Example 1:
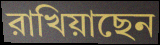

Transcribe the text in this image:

রাখিয়াছেন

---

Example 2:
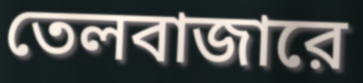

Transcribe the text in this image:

তেলবাজারে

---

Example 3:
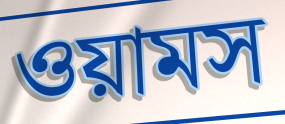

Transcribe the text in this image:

ওয়ামস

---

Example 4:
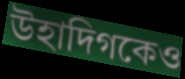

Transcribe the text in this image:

উহাদিগকেও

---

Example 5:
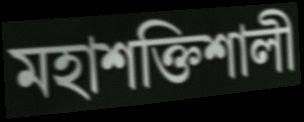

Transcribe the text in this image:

মহাশক্তিশালী